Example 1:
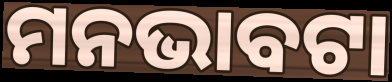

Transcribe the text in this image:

ମନଭାବଟା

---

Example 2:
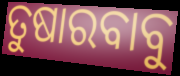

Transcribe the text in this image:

ତୁଷାରବାବୁ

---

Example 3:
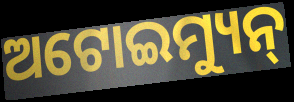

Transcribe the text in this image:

ଅଟୋଇମ୍ୟୁନ୍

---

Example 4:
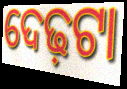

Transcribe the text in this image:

ଦେଢ଼ଟା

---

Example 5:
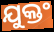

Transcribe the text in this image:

ଯୁକ୍ତଂ